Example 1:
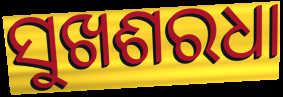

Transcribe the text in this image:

ସୁଖଶରଧା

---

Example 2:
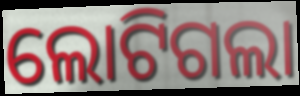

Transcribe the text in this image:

ଲୋଟିଗଲା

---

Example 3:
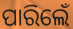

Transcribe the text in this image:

ପାରିଲେଁ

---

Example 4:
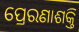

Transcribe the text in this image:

ପ୍ରେରଣାଶକ୍ତି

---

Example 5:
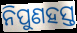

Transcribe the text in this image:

ନିପୁଣହସ୍ତ